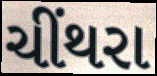
ચીંથરા